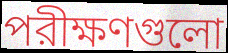
পরীক্ষণগুলো